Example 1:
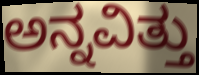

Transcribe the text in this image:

ಅನ್ನವಿತ್ತು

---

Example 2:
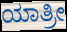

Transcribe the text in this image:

ಯಾತ್ರೀ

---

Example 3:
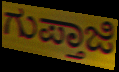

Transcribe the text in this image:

ಗುಪ್ತಾಜಿ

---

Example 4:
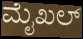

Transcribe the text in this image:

ಮೈಖಲ್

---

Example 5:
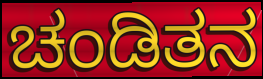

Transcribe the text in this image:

ಚಂಡಿತನ